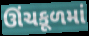
ઊંચકૂળમાં